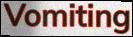
Vomiting